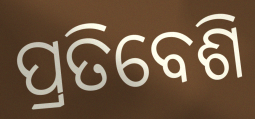
ପ୍ରତିବେଶି